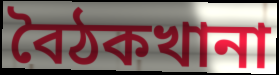
বৈঠকখানা